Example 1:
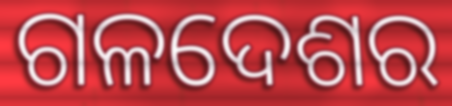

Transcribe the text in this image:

ଗଳଦେଶର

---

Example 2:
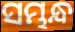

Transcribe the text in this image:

ସମ୍ଭନ୍ଧ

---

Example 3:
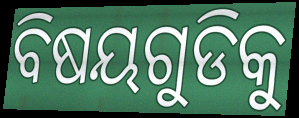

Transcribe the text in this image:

ବିଷୟଗୁଡିକୁ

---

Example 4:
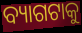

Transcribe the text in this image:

ବ୍ୟାଗଟାକୁ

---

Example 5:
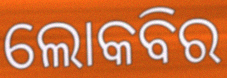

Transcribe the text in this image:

ଲୋକବିର